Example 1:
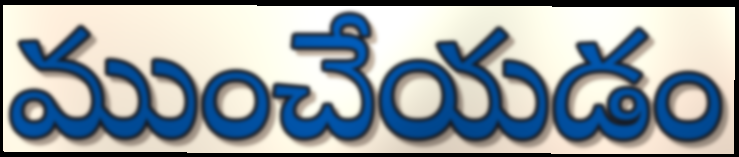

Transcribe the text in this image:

ముంచేయడం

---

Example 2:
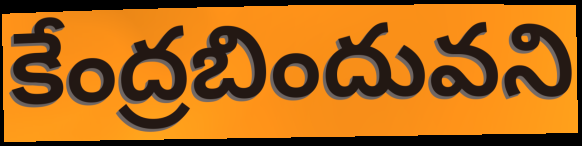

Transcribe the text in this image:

కేంద్రబిందువని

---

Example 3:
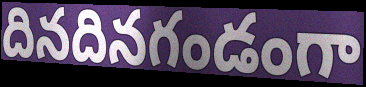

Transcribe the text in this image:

దినదినగండంగా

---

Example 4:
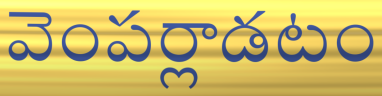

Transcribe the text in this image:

వెంపర్లాడటం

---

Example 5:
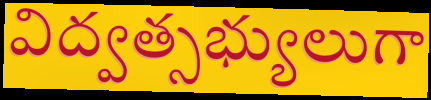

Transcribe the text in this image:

విద్వత్సభ్యులుగా